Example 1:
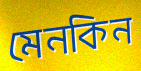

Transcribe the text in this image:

মেনকিন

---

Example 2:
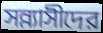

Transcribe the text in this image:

সন্ন্যাসীদের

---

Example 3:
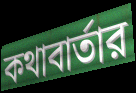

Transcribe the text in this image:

কথাবার্তার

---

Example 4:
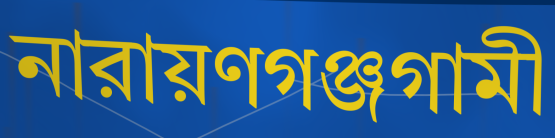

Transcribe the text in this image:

নারায়ণগঞ্জগামী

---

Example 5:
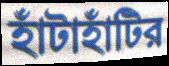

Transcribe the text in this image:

হাঁটাহাঁটির